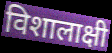
विशालाक्षी